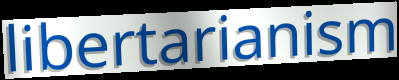
libertarianism